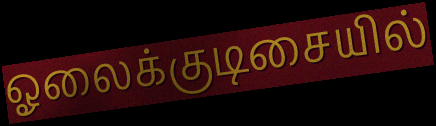
ஓலைக்குடிசையில்